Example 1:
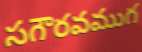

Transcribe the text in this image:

సగౌరవముగ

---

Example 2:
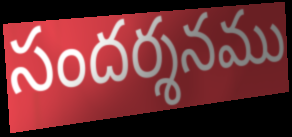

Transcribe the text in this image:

సందర్శనము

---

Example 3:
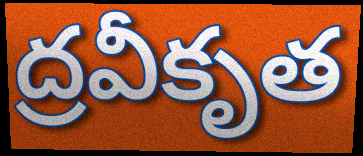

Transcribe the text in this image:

ద్రవీకృత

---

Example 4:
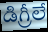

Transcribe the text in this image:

డిగ్రీలే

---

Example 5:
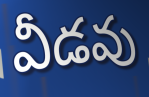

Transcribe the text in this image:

వీడవు